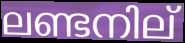
ലണ്ടനില്